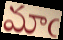
మాఁ